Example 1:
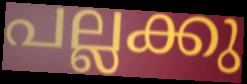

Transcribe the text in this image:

പല്ലക്കു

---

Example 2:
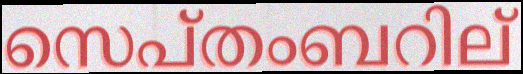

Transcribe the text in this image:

സെപ്തംബറില്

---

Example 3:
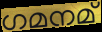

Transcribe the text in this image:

ഗമനമ്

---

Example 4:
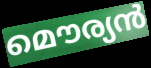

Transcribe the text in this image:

മൌര്യൻ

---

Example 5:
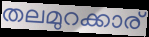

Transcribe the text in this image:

തലമുറക്കാര്